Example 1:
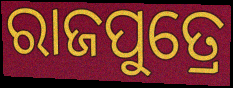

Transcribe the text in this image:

ରାଜପୁତ୍ରେ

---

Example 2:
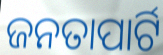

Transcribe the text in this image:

ଜନତାପାର୍ଟି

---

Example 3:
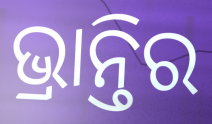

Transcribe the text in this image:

ଭ୍ରାନ୍ତିର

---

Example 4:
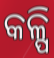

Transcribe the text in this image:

କଳ୍ପି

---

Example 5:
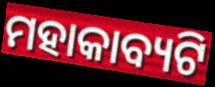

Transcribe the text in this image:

ମହାକାବ୍ୟଟି